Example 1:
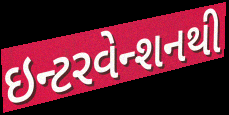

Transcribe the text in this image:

ઇન્ટરવેન્શનથી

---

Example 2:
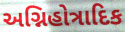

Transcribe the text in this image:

અગ્નિહોત્રાદિક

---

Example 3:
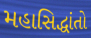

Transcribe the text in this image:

મહાસિદ્ધાંતો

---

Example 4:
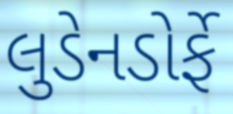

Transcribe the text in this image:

લુડેનડોર્ફે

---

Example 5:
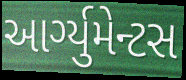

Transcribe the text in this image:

આર્ગ્યુમેન્ટસ